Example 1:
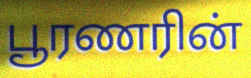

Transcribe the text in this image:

பூரணரின்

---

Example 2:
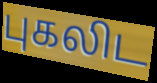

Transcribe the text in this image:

புகலிட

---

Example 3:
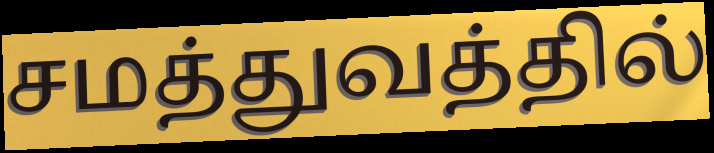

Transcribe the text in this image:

சமத்துவத்தில்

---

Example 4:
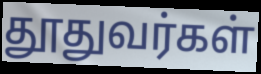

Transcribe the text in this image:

தூதுவர்கள்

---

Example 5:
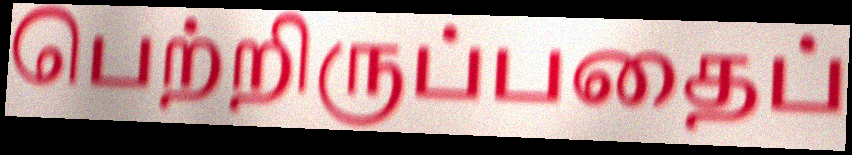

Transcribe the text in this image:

பெற்றிருப்பதைப்